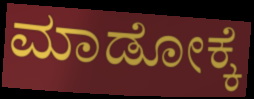
ಮಾಡೋಕ್ಕೆ